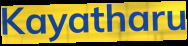
Kayatharu